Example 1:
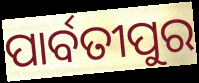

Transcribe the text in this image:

ପାର୍ବତୀପୁର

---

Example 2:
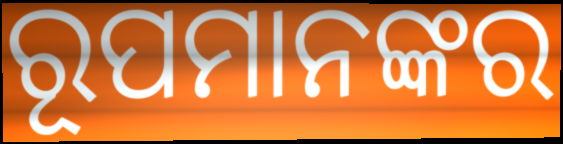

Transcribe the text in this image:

ରୂପମାନଙ୍କର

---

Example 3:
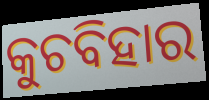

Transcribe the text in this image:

କୁଚବିହାର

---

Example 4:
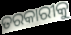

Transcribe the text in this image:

ତରକାରୀକୁ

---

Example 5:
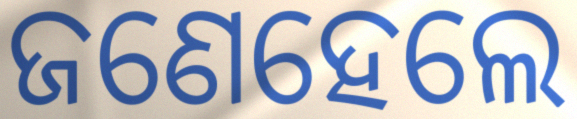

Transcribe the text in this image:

ଜଣେହେଲେ